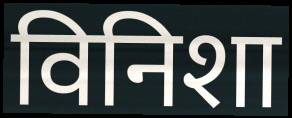
विनिशा